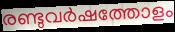
രണ്ടുവർഷത്തോളം